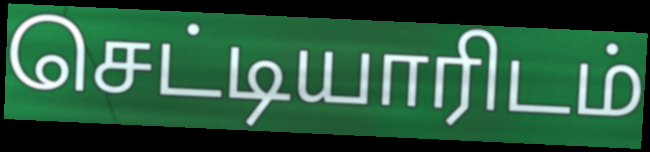
செட்டியாரிடம்